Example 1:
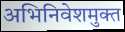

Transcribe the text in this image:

अभिनिवेशमुक्त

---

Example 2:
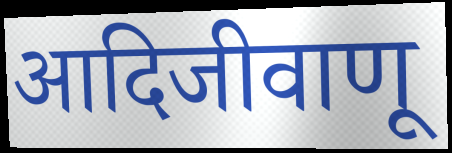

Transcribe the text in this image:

आदिजीवाणू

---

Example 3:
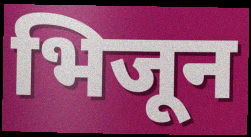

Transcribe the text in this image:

भिजून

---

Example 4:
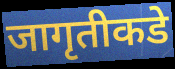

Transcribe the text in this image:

जागृतीकडे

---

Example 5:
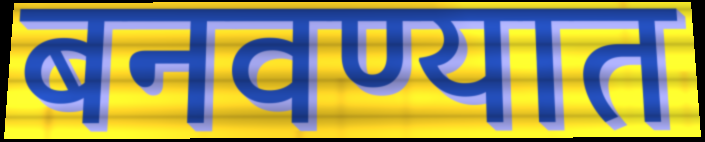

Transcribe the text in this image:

बनवण्यात